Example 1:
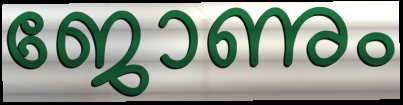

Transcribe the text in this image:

ജോണും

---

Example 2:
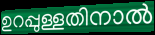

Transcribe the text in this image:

ഉറപ്പുള്ളതിനാൽ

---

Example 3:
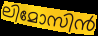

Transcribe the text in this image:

ലിമോസിൻ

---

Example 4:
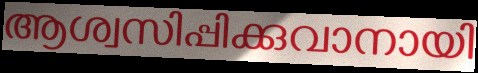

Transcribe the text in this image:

ആശ്വസിപ്പിക്കുവാനായി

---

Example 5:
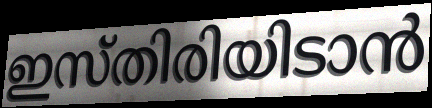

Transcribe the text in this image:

ഇസ്തിരിയിടാൻ